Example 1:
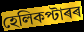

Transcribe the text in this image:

হেলিকপ্টাৰৰ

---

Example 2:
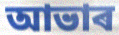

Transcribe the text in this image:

আভাৰ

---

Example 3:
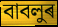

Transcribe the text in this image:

বাবলুৰ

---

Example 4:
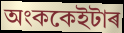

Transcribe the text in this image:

অংককেইটাৰ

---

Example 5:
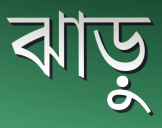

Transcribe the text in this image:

ঝাড়ু